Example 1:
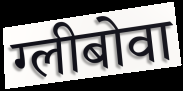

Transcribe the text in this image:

ग्लीबोवा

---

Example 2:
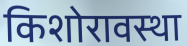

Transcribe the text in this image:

किशोरावस्था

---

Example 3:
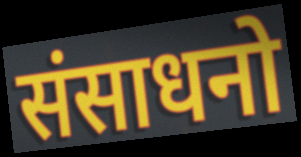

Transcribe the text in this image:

संसाधनो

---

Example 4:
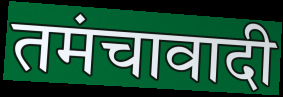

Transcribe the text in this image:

तमंचावादी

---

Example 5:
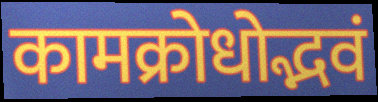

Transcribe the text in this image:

कामक्रोधोद्भवं